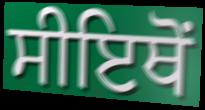
ਸੀਇਥੋਂ